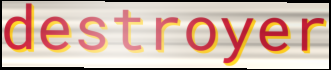
destroyer